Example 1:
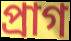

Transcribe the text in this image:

প্ৰাগ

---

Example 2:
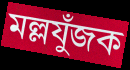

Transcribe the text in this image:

মল্লযুঁজক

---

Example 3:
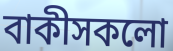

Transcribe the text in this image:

বাকীসকলো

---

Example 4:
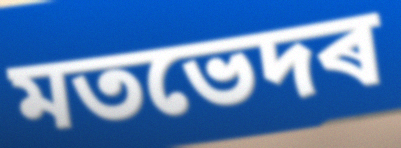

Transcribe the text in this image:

মতভেদৰ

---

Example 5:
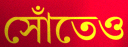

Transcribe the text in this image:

সোঁতেও